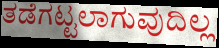
ತಡೆಗಟ್ಟಲಾಗುವುದಿಲ್ಲ